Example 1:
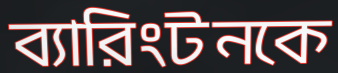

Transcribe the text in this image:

ব্যারিংটনকে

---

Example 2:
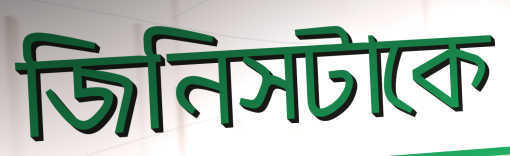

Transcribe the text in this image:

জিনিসটাকে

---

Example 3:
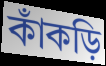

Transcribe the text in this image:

কাঁকড়ি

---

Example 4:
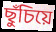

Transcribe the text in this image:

ছুঁচিয়ে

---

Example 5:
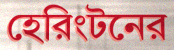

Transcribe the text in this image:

হেরিংটনের